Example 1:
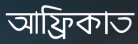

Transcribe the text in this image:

আফ্ৰিকাত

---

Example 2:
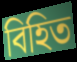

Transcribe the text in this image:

বিহিত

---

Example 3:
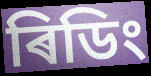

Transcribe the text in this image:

ৰিডিং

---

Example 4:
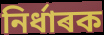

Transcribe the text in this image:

নিৰ্ধাৰক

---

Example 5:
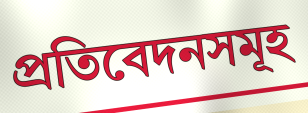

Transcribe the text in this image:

প্ৰতিবেদনসমূহ